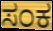
ಸಂಕ